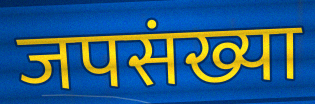
जपसंख्या